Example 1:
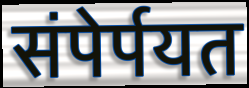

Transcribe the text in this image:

संपेर्पयत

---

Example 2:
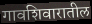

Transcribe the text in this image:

गावशिवारातील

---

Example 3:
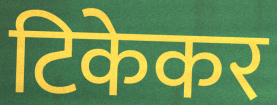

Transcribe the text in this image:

टिकेकर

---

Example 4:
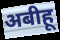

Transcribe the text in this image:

अबीहू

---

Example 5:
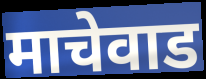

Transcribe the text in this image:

माचेवाड